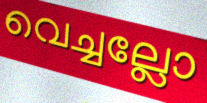
വെച്ചല്ലോ